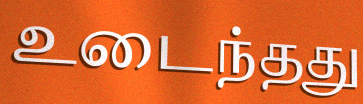
உடைந்தது